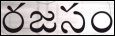
రజసం